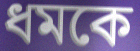
ধমকে